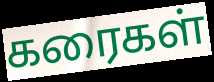
கரைகள்